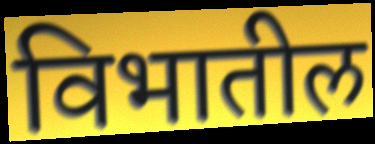
विभातील